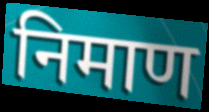
निमाण